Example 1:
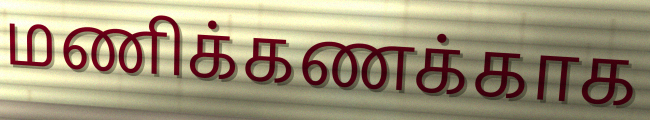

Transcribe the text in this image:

மணிக்கணக்காக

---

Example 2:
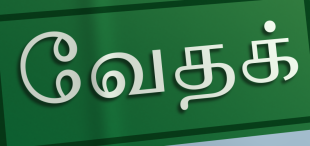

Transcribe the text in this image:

வேதக்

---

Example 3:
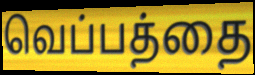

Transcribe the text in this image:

வெப்பத்தை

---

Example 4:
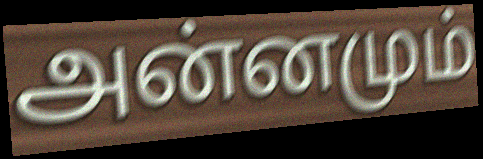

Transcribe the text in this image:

அன்னமும்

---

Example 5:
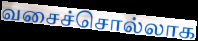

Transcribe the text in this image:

வசைச்சொல்லாக